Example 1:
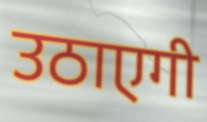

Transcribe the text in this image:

उठाएगी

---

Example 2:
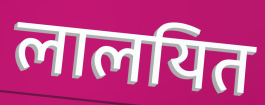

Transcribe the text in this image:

लालयित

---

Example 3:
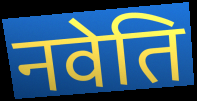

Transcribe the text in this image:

नवेति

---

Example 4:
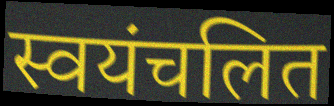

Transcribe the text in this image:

स्वयंचलित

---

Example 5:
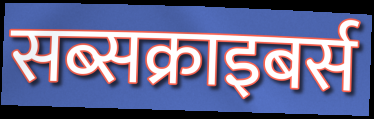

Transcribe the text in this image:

सब्सक्राइबर्स